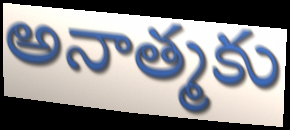
అనాత్మకు